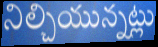
నిల్చియున్నట్లు